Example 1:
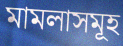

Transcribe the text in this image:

মামলাসমূহ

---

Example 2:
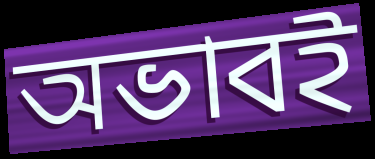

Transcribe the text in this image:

অভাবই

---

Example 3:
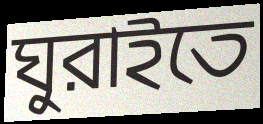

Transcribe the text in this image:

ঘুরাইতে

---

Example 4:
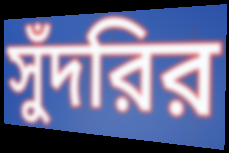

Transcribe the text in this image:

সুঁদরির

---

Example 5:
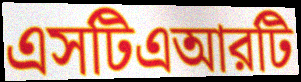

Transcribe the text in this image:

এসটিএআরটি